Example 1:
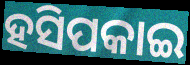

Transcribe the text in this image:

ହସିପକାଇ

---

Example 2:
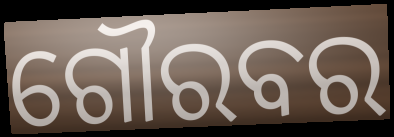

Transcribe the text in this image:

ଗୌରବର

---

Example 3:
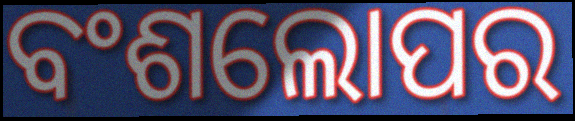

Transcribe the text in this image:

ବଂଶଲୋପର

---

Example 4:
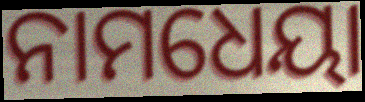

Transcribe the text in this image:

ନାମଧେୟା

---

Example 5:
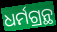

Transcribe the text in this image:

ଧର୍ମଗ୍ରନ୍ଥ